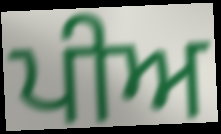
ਪੀਅ